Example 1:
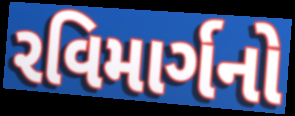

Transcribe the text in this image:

રવિમાર્ગનો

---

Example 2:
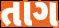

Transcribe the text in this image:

તાગ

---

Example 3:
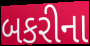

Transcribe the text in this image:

બકરીના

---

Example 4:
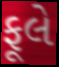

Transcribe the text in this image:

ફૂલે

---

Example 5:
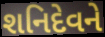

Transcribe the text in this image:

શનિદેવને